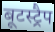
बूटस्ट्रैप